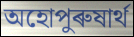
অহোপুৰুষাৰ্থ